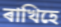
ৰাখিহে